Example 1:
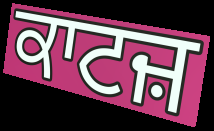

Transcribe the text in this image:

ਕਾਟਜ਼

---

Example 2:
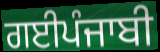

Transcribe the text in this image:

ਗਈਪੰਜਾਬੀ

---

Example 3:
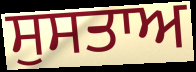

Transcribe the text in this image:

ਸੁਸਤਾਅ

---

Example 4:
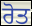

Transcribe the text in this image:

ਰੋਤ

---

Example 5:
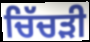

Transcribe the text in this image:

ਚਿੱਚੜੀ